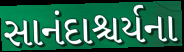
સાનંદાશ્ચર્યના